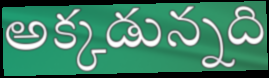
అక్కడున్నది